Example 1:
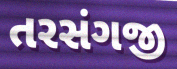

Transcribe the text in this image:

તરસંગજી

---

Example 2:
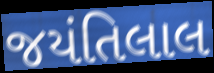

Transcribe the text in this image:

જયંતિલાલ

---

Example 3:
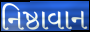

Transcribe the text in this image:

નિષ્ઠાવાન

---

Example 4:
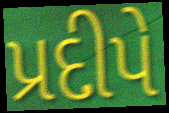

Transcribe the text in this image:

પ્રદીપે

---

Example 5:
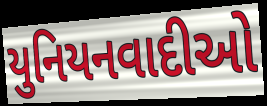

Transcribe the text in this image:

યુનિયનવાદીઓ